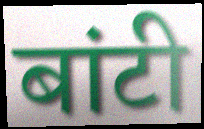
बांटी